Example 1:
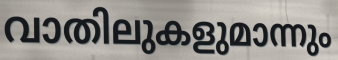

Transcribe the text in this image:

വാതിലുകളുമാന്നും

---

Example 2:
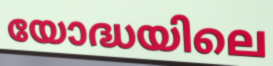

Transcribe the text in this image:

യോദ്ധയിലെ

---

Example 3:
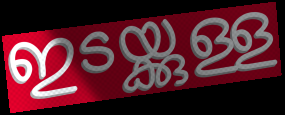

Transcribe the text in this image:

ഇടയ്ക്കുള്ള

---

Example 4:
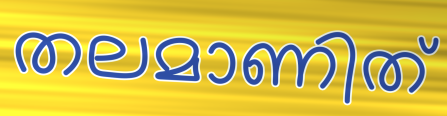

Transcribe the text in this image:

തലമാണിത്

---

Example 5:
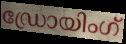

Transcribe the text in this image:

ഡ്രോയിംഗ്